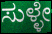
ಸುಳ್ಳೇ